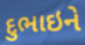
દુભાઇને